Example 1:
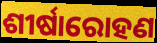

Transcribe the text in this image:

ଶୀର୍ଷାରୋହଣ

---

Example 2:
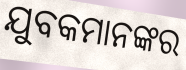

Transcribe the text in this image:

ଯୁବକମାନଙ୍କର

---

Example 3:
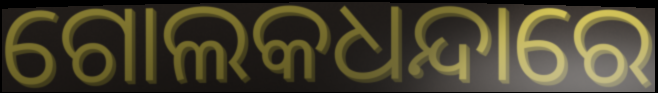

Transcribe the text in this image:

ଗୋଲକଧନ୍ଦାରେ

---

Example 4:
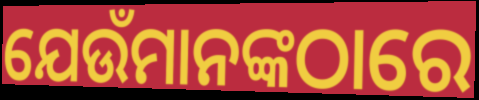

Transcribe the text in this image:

ଯେଉଁମାନଙ୍କଠାରେ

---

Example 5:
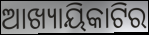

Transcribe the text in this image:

ଆଖ୍ୟାୟିକାଟିର